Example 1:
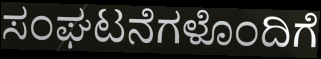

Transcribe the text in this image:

ಸಂಘಟನೆಗಳೊಂದಿಗೆ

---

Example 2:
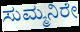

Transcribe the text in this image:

ಸುಮ್ಮನಿರೇ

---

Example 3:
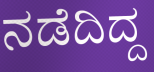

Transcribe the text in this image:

ನಡೆದಿದ್ದ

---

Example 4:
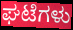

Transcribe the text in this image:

ಘಟೆಗಳು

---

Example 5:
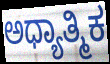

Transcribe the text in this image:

ಅಧ್ಯಾತ್ಮಿಕ